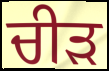
ਚੀੜ